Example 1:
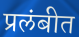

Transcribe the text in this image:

प्रलंबीत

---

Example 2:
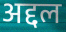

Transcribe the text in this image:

अद्दल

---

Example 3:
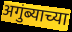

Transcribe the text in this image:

अगुंब्याच्या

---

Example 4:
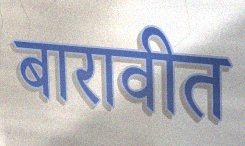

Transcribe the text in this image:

बारावीत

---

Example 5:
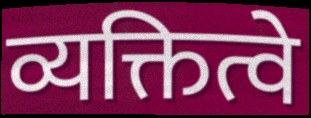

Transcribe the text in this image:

व्यक्तित्वे